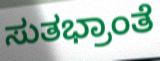
ಸುತಭ್ರಾಂತೆ